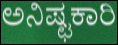
ಅನಿಷ್ಟಕಾರಿ